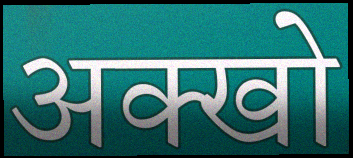
अक्खो